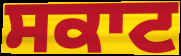
ਸਕਾਟ